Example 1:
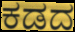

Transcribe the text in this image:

ಕಡದ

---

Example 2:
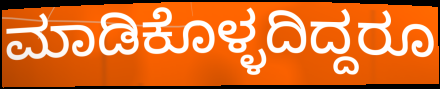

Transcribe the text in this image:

ಮಾಡಿಕೊಳ್ಳದಿದ್ದರೂ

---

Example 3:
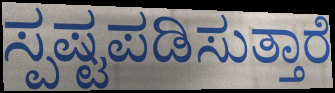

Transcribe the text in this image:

ಸ್ಪಷ್ಟಪಡಿಸುತ್ತಾರೆ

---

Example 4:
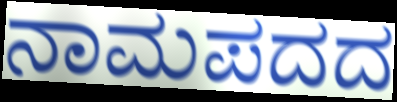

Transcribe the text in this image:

ನಾಮಪದದ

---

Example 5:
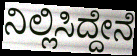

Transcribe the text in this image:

ನಿಲ್ಲಿಸಿದ್ದೇನೆ